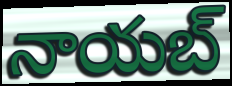
నాయబ్